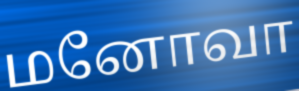
மனோவா